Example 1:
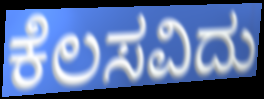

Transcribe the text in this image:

ಕೆಲಸವಿದು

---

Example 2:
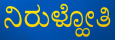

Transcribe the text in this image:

ನಿರುಳ್ಹೋತಿ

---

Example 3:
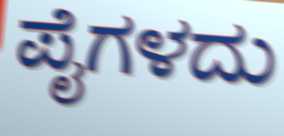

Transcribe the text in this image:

ಪೈಗಳದು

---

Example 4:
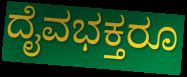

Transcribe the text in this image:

ದೈವಭಕ್ತರೂ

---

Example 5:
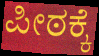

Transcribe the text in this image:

ಪೀಠಕ್ಕೆ